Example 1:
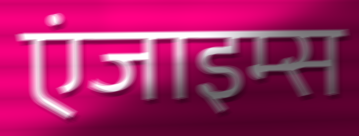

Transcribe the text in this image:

एंजाइम्‍स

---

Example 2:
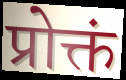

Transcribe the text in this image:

प्रोक्तं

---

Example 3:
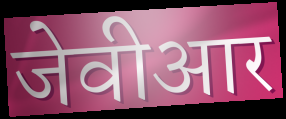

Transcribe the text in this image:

जेवीआर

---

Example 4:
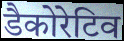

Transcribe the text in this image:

डैकोरेटिव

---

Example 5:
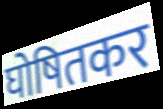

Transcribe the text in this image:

घोषितकर